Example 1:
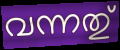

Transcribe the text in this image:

വന്നതു്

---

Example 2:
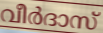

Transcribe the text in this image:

വീർദാസ്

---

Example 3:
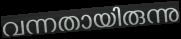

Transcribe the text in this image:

വന്നതായിരുന്നു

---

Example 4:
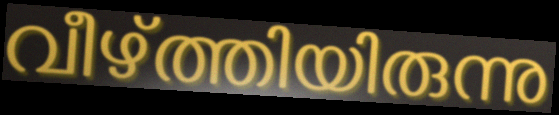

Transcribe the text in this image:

വീഴ്ത്തിയിരുന്നു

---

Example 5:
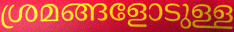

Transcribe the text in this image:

ശ്രമങ്ങളോടുള്ള